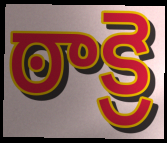
ఠాక్రె